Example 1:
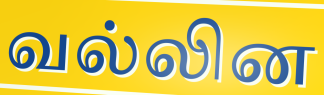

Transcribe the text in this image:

வல்லின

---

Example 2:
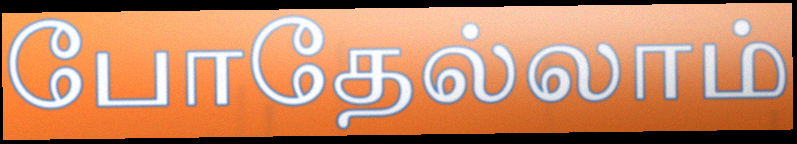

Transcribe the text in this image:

போதேல்லாம்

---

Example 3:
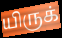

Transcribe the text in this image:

யிருக்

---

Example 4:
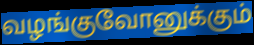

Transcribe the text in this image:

வழங்குவோனுக்கும்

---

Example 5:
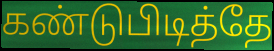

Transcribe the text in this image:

கண்டுபிடித்தே